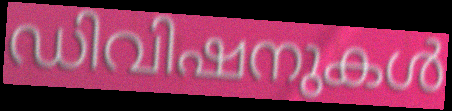
ഡിവിഷനുകൾ